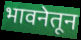
भावनेतून